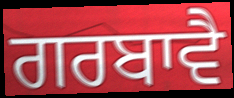
ਗਰਬਾਵੈ